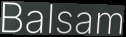
Balsam